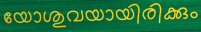
യോശുവയായിരിക്കും